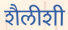
शैलीशी